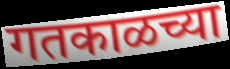
गतकाळच्या